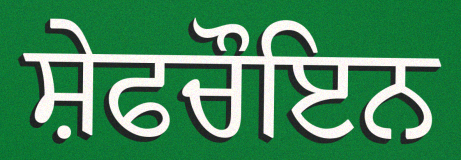
ਸ਼ੇਫਚੌਇਨ